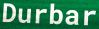
Durbar